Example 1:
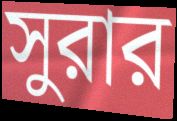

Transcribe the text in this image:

সুরার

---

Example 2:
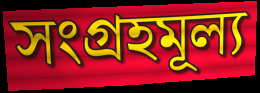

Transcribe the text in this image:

সংগ্রহমূল্য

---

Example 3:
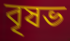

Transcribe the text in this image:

বৃষভ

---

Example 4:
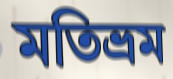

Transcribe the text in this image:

মতিভ্রম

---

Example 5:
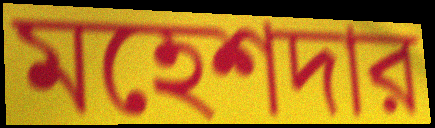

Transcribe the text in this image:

মহেশদার